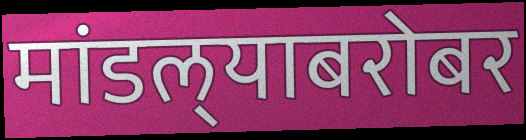
मांडल्याबरोबर